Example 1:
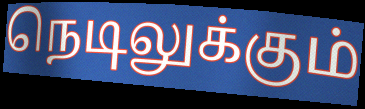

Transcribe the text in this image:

நெடிலுக்கும்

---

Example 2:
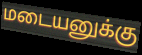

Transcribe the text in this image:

மடையனுக்கு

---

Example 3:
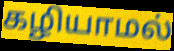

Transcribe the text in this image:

கழியாமல்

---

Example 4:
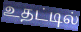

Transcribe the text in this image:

உதட்டில்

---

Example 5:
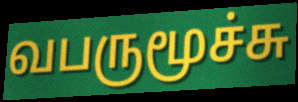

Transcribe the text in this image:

வபருமூச்சு